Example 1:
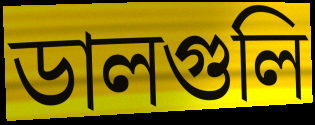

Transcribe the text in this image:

ডালগুলি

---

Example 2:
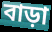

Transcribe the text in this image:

বাড়া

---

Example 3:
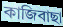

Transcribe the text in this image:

কাজিবাছা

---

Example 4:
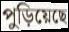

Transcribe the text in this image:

পুড়িয়েছে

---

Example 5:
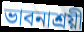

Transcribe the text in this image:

ভাবনাশ্রয়ী